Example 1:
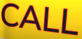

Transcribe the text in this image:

CALL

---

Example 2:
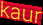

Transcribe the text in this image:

kaur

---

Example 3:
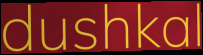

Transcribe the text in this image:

dushkal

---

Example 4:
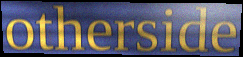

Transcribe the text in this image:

otherside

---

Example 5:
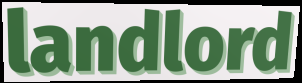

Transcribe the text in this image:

landlord